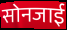
सोनजाई